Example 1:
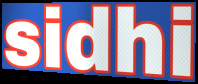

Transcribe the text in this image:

sidhi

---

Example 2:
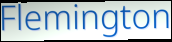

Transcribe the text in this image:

Flemington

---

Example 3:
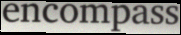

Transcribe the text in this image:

encompass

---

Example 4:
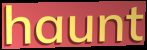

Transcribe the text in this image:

haunt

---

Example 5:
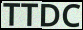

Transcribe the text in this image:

TTDC